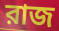
রাজ